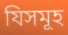
যিসমূহ